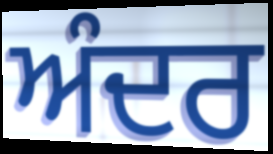
ਅੰਦਰ